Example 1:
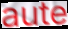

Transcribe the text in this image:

aute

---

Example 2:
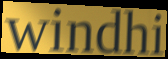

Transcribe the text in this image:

windhi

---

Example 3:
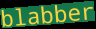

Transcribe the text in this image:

blabber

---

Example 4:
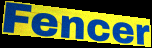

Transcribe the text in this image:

Fencer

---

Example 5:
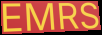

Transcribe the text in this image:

EMRS